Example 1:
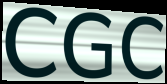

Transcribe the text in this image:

CGC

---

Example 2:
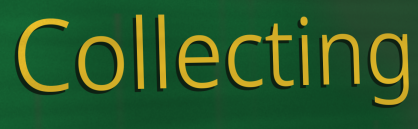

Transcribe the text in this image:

Collecting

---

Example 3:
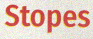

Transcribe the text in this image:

Stopes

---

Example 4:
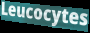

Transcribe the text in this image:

Leucocytes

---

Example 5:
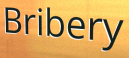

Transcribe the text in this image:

Bribery